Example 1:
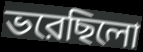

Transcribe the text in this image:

ভরেছিলো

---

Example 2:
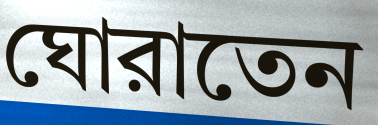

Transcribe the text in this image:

ঘোরাতেন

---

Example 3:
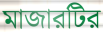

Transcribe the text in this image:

মাজারটির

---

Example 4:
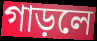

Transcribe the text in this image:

গাড়লে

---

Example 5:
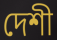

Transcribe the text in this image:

দেশী